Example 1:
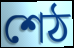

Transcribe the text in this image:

শেঠ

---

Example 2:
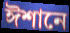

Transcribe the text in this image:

ঈশানে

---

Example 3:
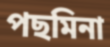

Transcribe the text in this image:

পছমিনা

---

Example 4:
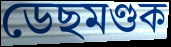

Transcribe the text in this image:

ডেছমণ্ডক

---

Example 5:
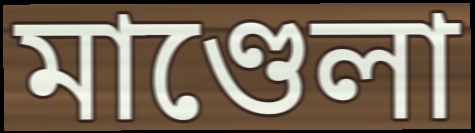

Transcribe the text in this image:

মাণ্ডেলা